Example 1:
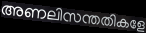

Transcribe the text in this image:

അണലിസന്തതികളേ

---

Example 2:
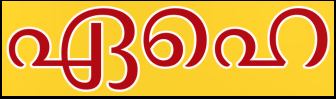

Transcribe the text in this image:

ഏഹെ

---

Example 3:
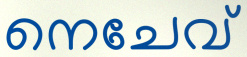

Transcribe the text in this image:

നെചേവ്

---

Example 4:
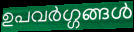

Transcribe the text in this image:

ഉപവർഗ്ഗങ്ങൾ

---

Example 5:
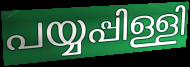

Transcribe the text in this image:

പയ്യപ്പിള്ളി